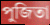
পুজিতা